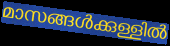
മാസങ്ങൾക്കുള്ളിൽ